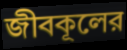
জীবকূলের